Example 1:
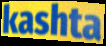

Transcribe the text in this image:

kashta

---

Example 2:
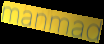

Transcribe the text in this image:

manmad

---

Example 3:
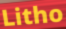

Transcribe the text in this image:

Litho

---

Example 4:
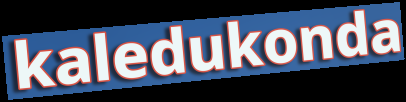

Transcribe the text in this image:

kaledukonda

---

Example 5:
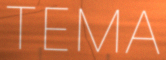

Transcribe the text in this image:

TEMA